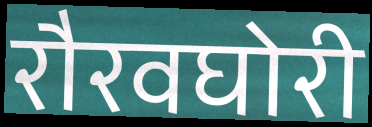
रौरवघोरी